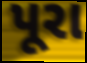
પૂરા